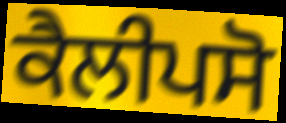
ਕੈਲੀਪਸੋ